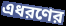
এধরণের